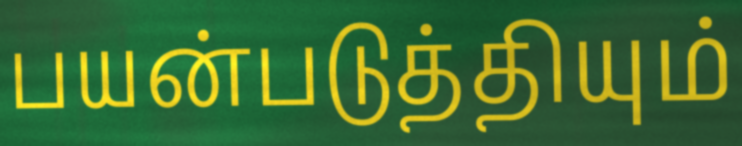
பயன்படுத்தியும்